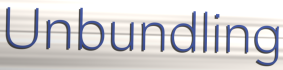
Unbundling